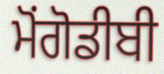
ਮੋਂਗੋਡੀਬੀ